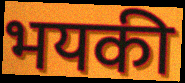
भयकी